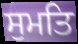
ਸੁਮਤਿ